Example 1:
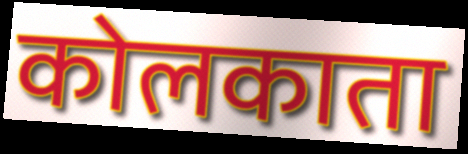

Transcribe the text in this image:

कोलकाता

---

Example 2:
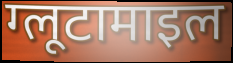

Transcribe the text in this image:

ग्लूटामाइल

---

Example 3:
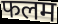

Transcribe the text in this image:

फलम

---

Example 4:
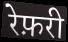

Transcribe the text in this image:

रेफ़री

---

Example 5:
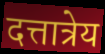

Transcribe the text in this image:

दत्तात्रेय